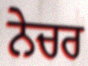
ਨੇਚਰ